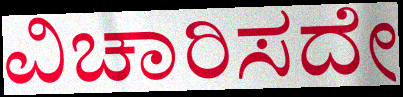
ವಿಚಾರಿಸದೇ